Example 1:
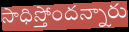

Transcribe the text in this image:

సాధిస్తోందన్నారు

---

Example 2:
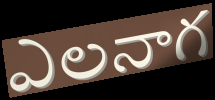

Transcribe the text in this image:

ఎలనాగ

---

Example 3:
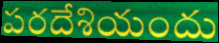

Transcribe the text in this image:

పరదేశియందు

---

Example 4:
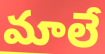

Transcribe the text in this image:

మాలే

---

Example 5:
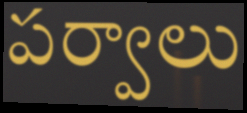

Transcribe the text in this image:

పర్వాలు